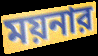
ময়নার